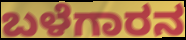
ಬಳೆಗಾರನ